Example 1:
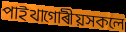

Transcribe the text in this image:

পাইথাগোৰীয়সকলে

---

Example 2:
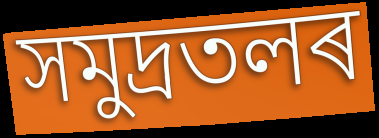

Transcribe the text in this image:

সমুদ্ৰতলৰ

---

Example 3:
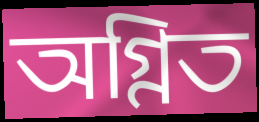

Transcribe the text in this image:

অগ্নিত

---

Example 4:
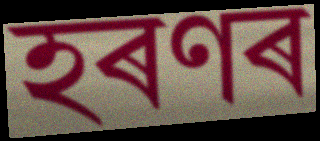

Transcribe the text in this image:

হৰণৰ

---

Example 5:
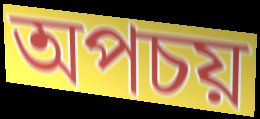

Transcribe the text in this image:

অপচয়